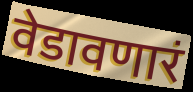
वेडावणारं